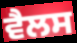
ਵੈਲਸ